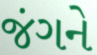
જંગને